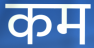
कम